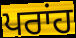
ਪਰਾਂਹ